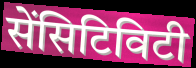
सेंसिटिविटी